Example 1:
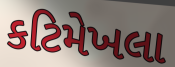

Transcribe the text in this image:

કટિમેખલા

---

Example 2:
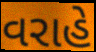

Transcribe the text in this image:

વરાહે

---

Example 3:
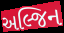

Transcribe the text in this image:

અલ્જિન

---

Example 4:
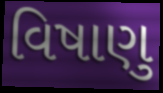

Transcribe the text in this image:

વિષાણુ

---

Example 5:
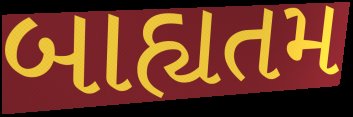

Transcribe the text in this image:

બાહ્યતમ